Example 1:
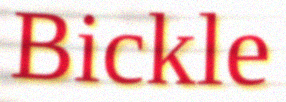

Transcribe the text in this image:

Bickle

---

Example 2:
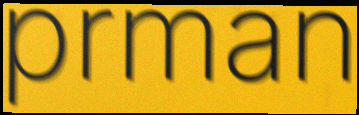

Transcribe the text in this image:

prman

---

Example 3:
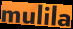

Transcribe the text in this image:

mulila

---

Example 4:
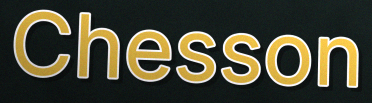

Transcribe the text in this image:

Chesson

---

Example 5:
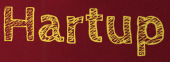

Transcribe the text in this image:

Hartup